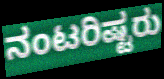
ನಂಟರಿಷ್ಟರು